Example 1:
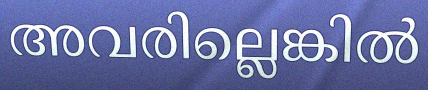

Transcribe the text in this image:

അവരില്ലെങ്കിൽ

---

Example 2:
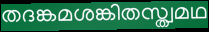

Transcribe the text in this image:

തദങ്കമശങ്കിതസ്ത്വമഥ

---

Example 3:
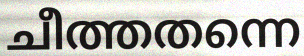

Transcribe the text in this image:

ചീത്തതന്നെ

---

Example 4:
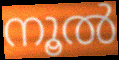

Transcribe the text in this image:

നൂൽ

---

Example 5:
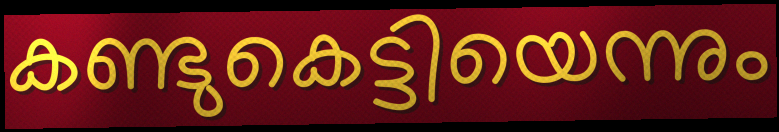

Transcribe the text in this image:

കണ്ടുകെട്ടിയെന്നും